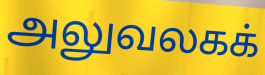
அலுவலகக்